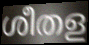
ശീതള